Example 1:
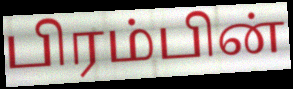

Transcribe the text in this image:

பிரம்பின்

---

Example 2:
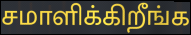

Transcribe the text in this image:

சமாளிக்கிறீங்க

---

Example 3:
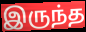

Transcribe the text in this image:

இருந்த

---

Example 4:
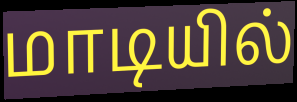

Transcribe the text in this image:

மாடியில்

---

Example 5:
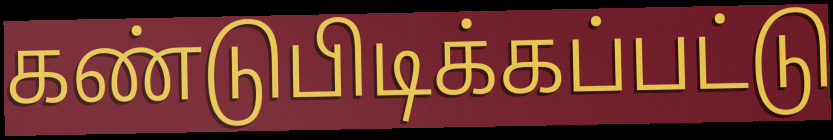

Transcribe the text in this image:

கண்டுபிடிக்கப்பட்டு